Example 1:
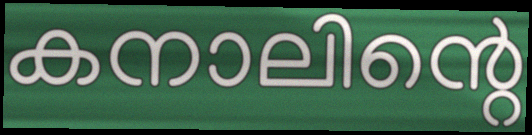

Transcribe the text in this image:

കനാലിന്റെ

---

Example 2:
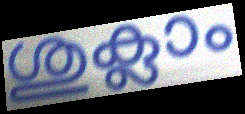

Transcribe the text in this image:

ശുക്ലാം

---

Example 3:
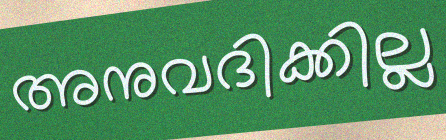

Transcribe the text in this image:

അനുവദിക്കില്ല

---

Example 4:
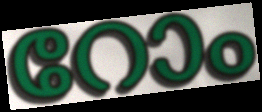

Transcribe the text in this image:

റോം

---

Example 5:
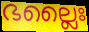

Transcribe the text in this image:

ഭല്ലൈഃ